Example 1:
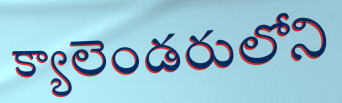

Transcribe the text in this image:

క్యాలెండరులోని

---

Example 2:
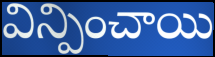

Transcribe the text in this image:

విన్పించాయి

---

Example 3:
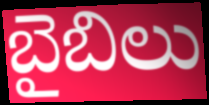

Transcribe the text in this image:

బైబిలు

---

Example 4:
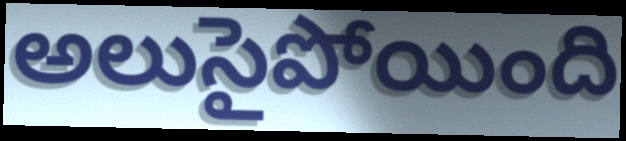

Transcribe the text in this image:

అలుసైపోయింది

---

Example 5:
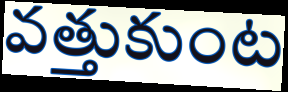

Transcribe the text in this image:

వత్తుకుంట